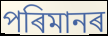
পৰিমানৰ